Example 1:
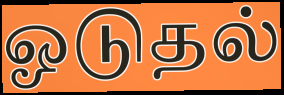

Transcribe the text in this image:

ஓடுதல்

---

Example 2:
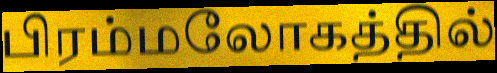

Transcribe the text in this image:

பிரம்மலோகத்தில்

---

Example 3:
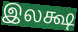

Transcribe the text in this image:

இலக்ஷ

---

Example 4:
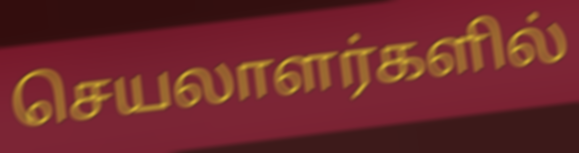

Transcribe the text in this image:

செயலாளர்களில்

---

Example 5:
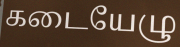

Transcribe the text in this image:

கடையேழு